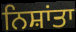
ਨਿਸ਼ਾਂਤਾ